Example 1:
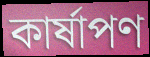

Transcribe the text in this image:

কার্ষাপণ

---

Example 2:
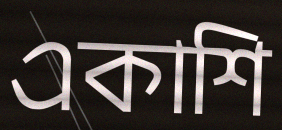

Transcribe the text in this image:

একাশি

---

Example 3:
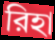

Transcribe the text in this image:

রিহা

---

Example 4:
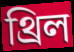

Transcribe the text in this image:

থ্রিল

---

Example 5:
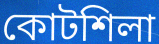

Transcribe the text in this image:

কোটশিলা